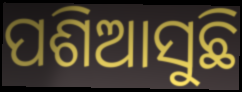
ପଶିଆସୁଛି